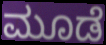
ಮೂಡೆ